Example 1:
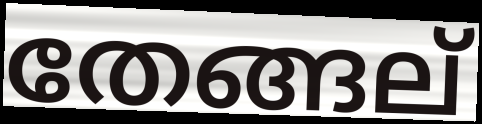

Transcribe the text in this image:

തേങ്ങല്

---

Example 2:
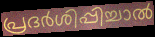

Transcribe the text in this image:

പ്രദർശിപ്പിച്ചാൽ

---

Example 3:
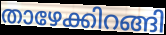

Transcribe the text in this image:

താഴേക്കിറങ്ങി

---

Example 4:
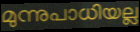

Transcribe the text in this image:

മുന്നുപാധിയല്ല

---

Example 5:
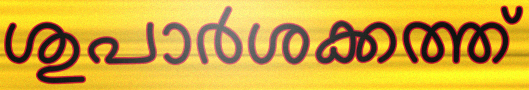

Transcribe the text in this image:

ശുപാർശക്കത്ത്